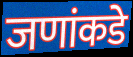
जणांकडे